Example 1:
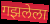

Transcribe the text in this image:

गझलेला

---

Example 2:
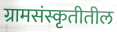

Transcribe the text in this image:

ग्रामसंस्कृतीतील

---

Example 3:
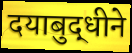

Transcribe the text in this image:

दयाबुद्धीने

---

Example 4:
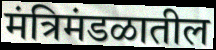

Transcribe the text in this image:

मंत्रिमंडळातील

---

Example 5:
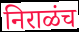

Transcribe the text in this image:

निराळंच